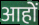
आहों